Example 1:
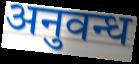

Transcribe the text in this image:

अनुवन्ध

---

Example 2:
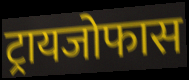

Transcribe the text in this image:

ट्रायजोफास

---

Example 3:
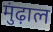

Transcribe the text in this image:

मुंढ़ाल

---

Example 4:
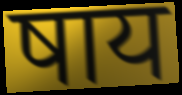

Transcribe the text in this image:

षाय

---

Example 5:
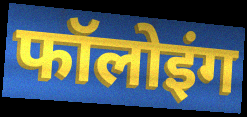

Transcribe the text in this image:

फॉलोइंग